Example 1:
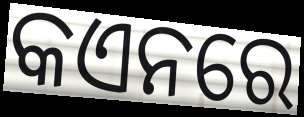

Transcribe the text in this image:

କଏନରେ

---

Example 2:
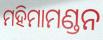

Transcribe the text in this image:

ମହିମାମଣ୍ଡନ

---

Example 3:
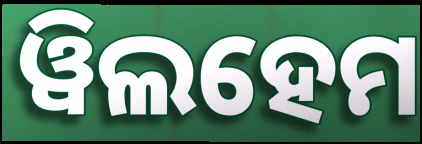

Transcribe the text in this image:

ୱିଲହେମ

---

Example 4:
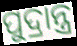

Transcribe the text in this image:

ପୁଦ୍ରାନ୍ତ୍ର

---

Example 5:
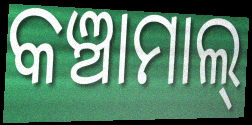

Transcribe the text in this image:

କଞ୍ଚାମାଲ୍